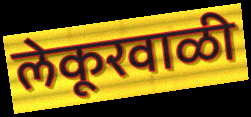
लेकूरवाळी